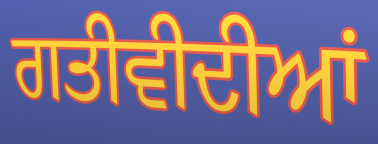
ਗਤੀਵੀਦੀਆਂ